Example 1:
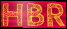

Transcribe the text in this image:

HBR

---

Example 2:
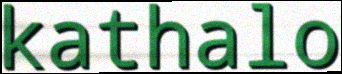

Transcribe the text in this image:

kathalo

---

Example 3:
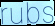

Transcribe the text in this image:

rubs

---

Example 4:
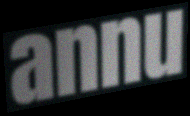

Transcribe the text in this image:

annu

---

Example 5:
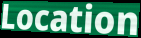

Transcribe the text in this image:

Location